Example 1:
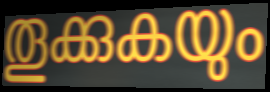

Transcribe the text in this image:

തൂക്കുകയും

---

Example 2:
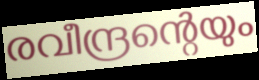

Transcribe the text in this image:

രവീന്ദ്രന്റെയും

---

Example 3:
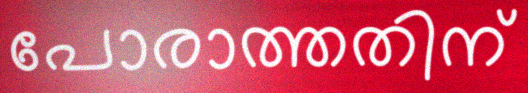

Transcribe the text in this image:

പോരാത്തതിന്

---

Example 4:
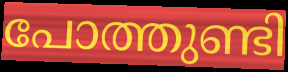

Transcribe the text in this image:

പോത്തുണ്ടി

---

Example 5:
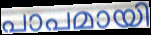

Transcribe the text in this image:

പാപമായി